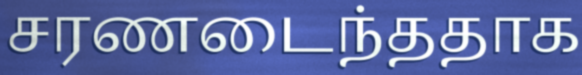
சரணடைந்ததாக